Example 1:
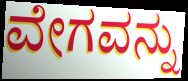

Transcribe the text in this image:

ವೇಗವನ್ನು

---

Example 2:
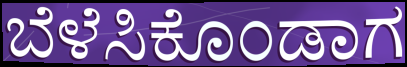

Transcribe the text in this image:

ಬೆಳೆಸಿಕೊಂಡಾಗ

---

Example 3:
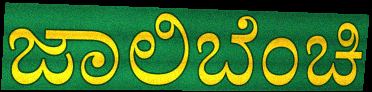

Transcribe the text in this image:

ಜಾಲಿಬೆಂಚಿ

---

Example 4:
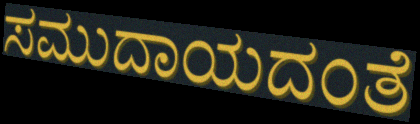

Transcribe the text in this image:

ಸಮುದಾಯದಂತೆ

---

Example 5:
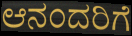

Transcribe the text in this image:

ಆನಂದರಿಗೆ